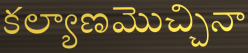
కల్యాణమొచ్చినా